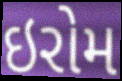
ઇરોમ